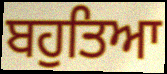
ਬਹੁਤਿਆ